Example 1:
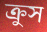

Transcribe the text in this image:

ক্রুস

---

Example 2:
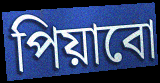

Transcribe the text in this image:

পিয়াবো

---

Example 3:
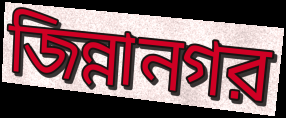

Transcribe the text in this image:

জিন্নানগর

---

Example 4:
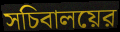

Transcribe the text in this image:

সচিবালয়ের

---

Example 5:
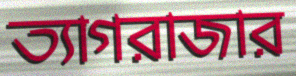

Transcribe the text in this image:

ত্যাগরাজার